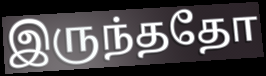
இருந்ததோ